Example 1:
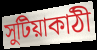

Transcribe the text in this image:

সুটিয়াকাঠী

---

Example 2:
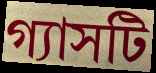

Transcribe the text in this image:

গ্যাসটি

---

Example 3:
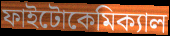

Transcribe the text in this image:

ফাইটোকেমিক্যাল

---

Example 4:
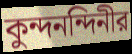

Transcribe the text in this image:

কুন্দনন্দিনীর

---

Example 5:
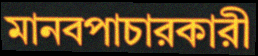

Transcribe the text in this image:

মানবপাচারকারী